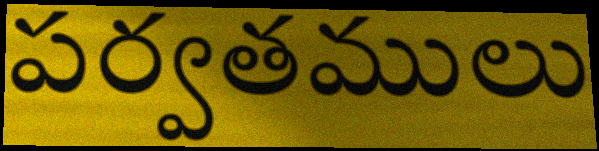
పర్వతములు